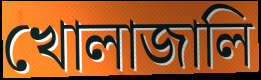
খোলাজালি